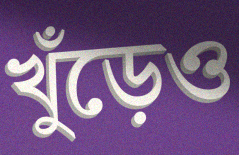
খুঁড়েও